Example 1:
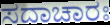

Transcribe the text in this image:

ಸದಾಚಾರಃ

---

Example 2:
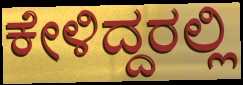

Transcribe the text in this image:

ಕೇಳಿದ್ದರಲ್ಲಿ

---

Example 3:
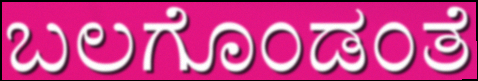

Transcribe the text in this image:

ಬಲಗೊಂಡಂತೆ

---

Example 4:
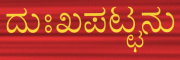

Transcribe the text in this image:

ದುಃಖಪಟ್ಟನು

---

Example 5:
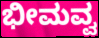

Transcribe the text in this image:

ಭೀಮವ್ವ